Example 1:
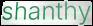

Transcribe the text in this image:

shanthy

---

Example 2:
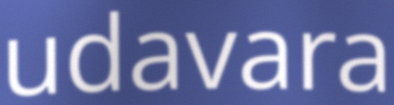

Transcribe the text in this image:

udavara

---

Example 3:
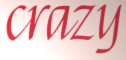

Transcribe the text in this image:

crazy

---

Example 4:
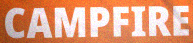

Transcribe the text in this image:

CAMPFIRE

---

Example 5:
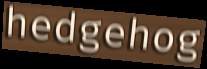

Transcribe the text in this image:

hedgehog